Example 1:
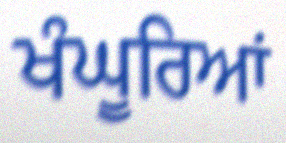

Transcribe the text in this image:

ਖੰਘੂਰਿਆਂ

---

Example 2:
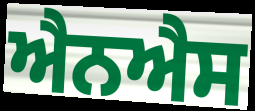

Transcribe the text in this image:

ਐਨਐਸ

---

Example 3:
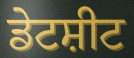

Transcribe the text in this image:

ਡੇਟਸ਼ੀਟ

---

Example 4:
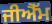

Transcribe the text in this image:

ਜੀਐੱਮ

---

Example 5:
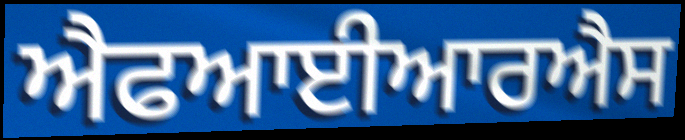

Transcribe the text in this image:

ਐਫਆਈਆਰਐਸ